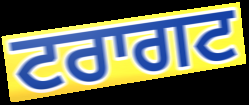
ਟਰਾਗਟ